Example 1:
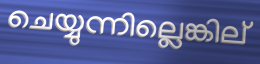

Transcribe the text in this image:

ചെയ്യുന്നില്ലെങ്കില്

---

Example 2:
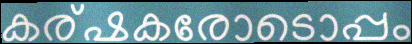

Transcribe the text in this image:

കര്ഷകരോടൊപ്പം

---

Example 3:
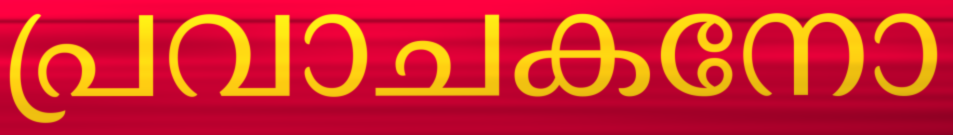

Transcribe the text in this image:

പ്രവാചകനോ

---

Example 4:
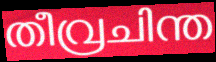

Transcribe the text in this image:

തീവ്രചിന്ത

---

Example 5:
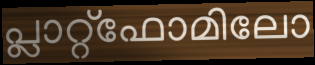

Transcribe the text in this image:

പ്ലാറ്റ്ഫോമിലോ